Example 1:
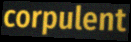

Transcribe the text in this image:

corpulent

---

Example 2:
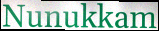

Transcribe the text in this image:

Nunukkam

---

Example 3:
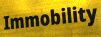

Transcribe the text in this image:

Immobility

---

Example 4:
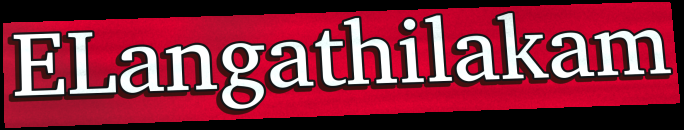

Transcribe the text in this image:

ELangathilakam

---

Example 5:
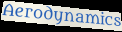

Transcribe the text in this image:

Aerodynamics